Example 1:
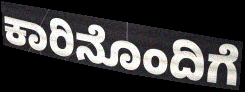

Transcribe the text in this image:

ಕಾರಿನೊಂದಿಗೆ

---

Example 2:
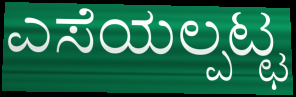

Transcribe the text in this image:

ಎಸೆಯಲ್ಪಟ್ಟ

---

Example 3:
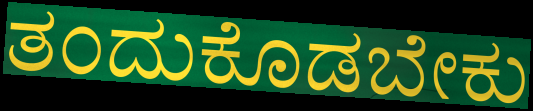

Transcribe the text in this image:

ತಂದುಕೊಡಬೇಕು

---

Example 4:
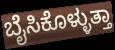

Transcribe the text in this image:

ಬೈಸಿಕೊಳ್ಳುತ್ತಾ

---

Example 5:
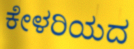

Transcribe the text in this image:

ಕೇಳರಿಯದ